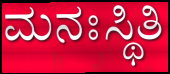
ಮನಃಸ್ಥಿತಿ